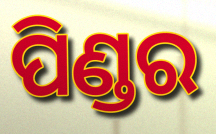
ପିଣ୍ଡର